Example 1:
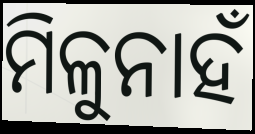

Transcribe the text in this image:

ମିଳୁନାହଁ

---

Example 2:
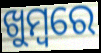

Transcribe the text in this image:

ଖୁମ୍ବରେ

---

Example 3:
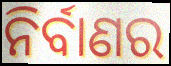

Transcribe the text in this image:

ନିର୍ବାଣର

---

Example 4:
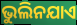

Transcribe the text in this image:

ଭୁଲିନଯାଏ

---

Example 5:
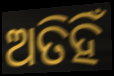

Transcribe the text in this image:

ଅତିହିଁ